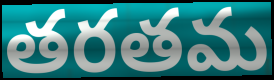
తరతమ